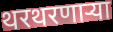
थरथरणाऱ्या